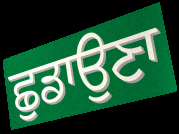
ਛੁਡਾਉਣਾ